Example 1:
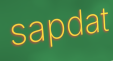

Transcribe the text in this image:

sapdat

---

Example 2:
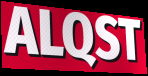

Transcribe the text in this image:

ALQST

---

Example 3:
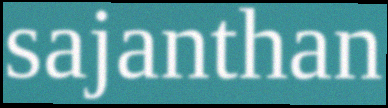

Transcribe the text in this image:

sajanthan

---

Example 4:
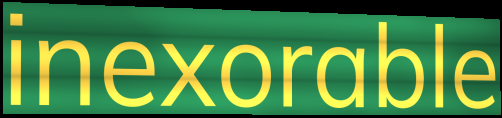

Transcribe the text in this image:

inexorable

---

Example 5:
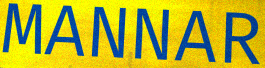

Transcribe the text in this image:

MANNAR